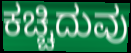
ಕಚ್ಚಿದುವು